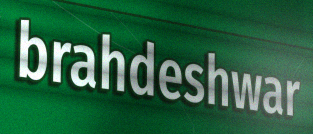
brahdeshwar